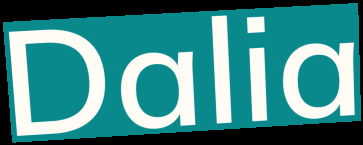
Dalia